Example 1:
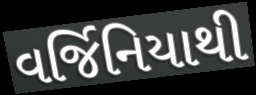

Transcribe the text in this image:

વર્જિનિયાથી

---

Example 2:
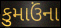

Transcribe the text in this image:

કુમાઉંના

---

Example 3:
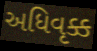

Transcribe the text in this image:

અધિવૃક્ક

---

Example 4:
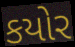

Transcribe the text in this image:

કયોર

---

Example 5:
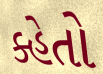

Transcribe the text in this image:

ક્હેતો